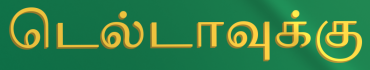
டெல்டாவுக்கு